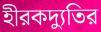
হীরকদ্যুতির